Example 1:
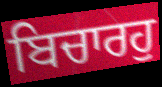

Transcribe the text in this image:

ਬਿਚਾਰਹੁ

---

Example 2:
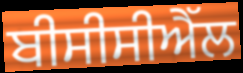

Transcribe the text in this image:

ਬੀਸੀਸੀਐੱਲ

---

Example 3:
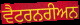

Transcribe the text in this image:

ਵੈਟਰਨਰੀਅਨ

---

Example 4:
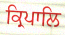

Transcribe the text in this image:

ਕ੍ਰਿਪਾਲਿ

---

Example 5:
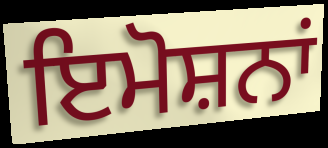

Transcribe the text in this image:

ਇਮੋਸ਼ਨਾਂ